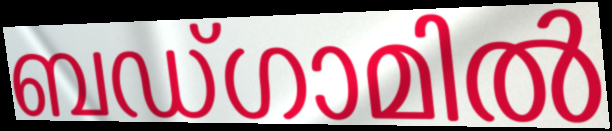
ബഡ്ഗാമിൽ